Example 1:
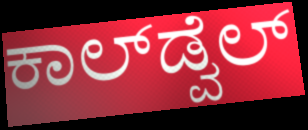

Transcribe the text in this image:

ಕಾಲ್‌ಡ್ವೆಲ್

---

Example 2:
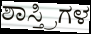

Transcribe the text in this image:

ಶಾಸ್ತ್ರಿಗಳ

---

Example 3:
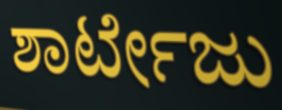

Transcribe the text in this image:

ಶಾರ್ಟೇಜು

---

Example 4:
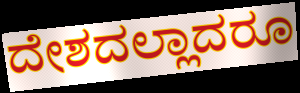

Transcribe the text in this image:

ದೇಶದಲ್ಲಾದರೂ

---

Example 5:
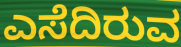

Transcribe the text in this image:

ಎಸೆದಿರುವ